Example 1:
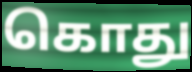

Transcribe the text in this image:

கொது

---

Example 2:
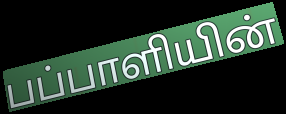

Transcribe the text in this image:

பப்பாளியின்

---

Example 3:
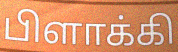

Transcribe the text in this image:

பிளாக்கி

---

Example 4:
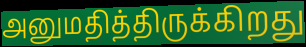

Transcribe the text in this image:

அனுமதித்திருக்கிறது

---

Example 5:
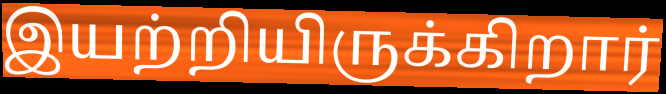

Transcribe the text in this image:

இயற்றியிருக்கிறார்